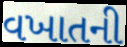
વખાતની